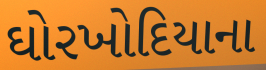
ઘોરખોદિયાના